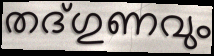
തദ്ഗുണവും